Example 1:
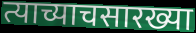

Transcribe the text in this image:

त्याच्याचसारख्या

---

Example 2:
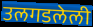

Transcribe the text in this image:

उलगडलेली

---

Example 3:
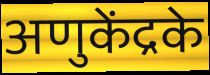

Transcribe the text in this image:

अणुकेंद्रके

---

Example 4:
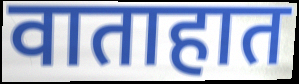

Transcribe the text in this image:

वाताहात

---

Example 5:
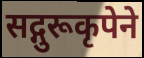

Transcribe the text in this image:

सद्गुरूकृपेने